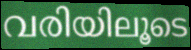
വരിയിലൂടെ